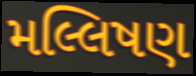
મલ્લિષણ